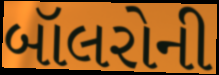
બૉલરોની